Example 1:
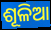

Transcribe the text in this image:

ଶୂଳିଆ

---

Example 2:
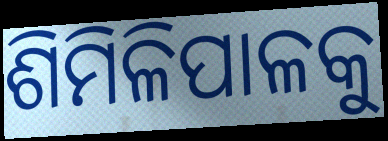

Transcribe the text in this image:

ଶିମିଳିପାଳକୁ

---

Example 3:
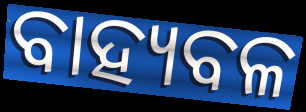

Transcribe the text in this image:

ବାହ୍ୟବଳ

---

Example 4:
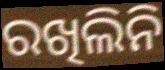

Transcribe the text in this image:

ରଖିଲିନି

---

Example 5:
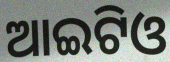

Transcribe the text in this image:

ଆଇଟିଓ